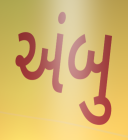
અંબુ